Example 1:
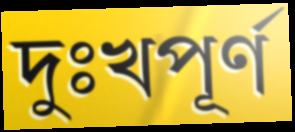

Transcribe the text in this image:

দুঃখপূর্ণ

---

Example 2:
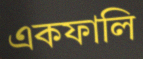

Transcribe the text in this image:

একফালি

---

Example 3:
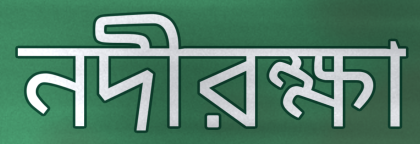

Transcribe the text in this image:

নদীরক্ষা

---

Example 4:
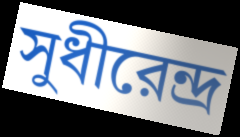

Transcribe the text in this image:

সুধীরেন্দ্র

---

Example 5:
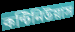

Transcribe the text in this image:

কন্টিনিউয়াস